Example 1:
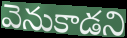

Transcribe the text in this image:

వెనుకాడని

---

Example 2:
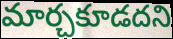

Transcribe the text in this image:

మార్చకూడదని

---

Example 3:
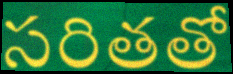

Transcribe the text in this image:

సరితతో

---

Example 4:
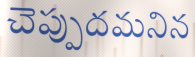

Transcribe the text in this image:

చెప్పుదమనిన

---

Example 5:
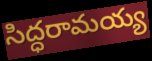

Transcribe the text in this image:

సిద్ధరామయ్య